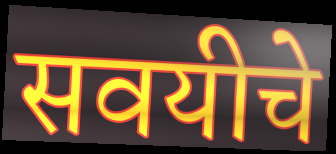
सवयीचे